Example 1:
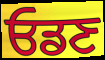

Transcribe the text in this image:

ਓਡਣ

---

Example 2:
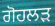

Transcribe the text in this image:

ਗੋਹਲੜ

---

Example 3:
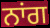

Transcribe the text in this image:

ਨਾਂਗ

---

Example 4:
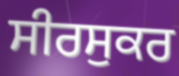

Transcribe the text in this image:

ਸੀਰਸੁਕਰ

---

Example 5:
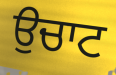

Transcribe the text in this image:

ਉਚਾਟ